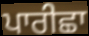
ਪਾਰੀਛਾ